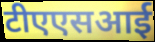
टीएएसआई